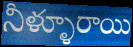
నీళ్ళూరాయి